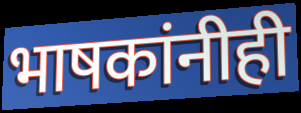
भाषकांनीही